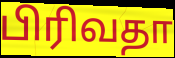
பிரிவதா